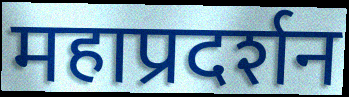
महाप्रदर्शन